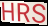
HRS